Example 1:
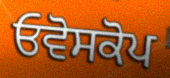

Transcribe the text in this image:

ਓਵੋਸਕੋਪ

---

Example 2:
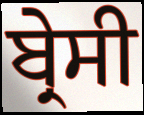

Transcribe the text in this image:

ਬ੍ਰੇਸੀ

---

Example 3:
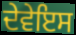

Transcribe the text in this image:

ਦੇਵੇਇਸ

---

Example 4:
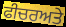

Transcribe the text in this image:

ਫੀਚਰਅਤੇ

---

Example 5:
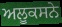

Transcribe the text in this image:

ਅਲੂਕਸਨੇ